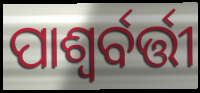
ପାଶ୍ୱର୍ବର୍ତ୍ତୀ